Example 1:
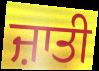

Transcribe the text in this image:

ਜ਼ਾਤੀ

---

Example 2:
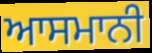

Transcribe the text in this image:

ਆਸਮਾਨੀ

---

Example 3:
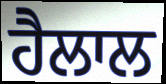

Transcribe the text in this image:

ਹੈਲਾਲ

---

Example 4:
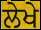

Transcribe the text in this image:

ਲੇਖੇ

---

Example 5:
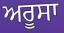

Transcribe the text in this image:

ਅਰੂਸਾ